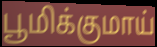
பூமிக்குமாய்